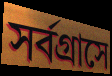
সর্বগ্রাসে